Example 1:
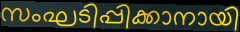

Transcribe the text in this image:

സംഘടിപ്പിക്കാനായി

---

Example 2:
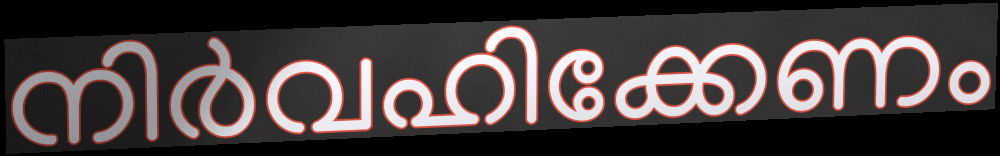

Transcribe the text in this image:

നിർവഹിക്കേണം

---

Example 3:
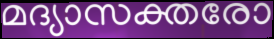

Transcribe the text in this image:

മദ്യാസക്തരോ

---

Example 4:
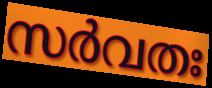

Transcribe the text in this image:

സർവതഃ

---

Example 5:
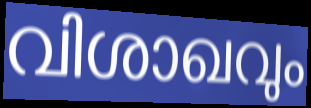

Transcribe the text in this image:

വിശാഖവും